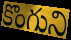
కొంగుని